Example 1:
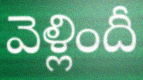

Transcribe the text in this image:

వెళ్లిందీ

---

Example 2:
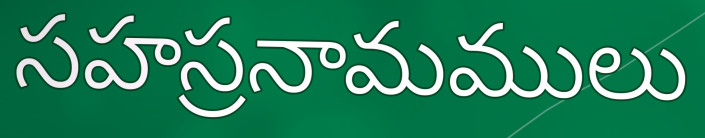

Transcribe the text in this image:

సహస్రనామములు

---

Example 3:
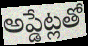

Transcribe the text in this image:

అప్డేట్లతో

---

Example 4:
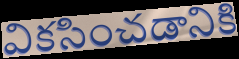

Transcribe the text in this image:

వికసించడానికి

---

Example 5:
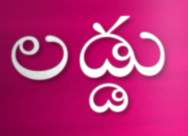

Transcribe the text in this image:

లడ్డు